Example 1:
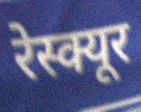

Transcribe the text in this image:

रेस्क्यूर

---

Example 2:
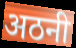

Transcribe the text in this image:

अठनी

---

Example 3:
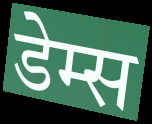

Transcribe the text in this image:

डेम्स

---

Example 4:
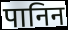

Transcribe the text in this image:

पानिन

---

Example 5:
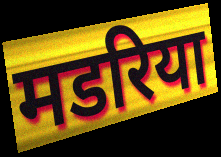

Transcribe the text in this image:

मडरिया